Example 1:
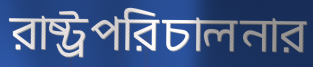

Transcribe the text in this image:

রাষ্ট্রপরিচালনার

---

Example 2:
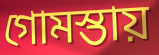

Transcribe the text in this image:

গোমস্তায়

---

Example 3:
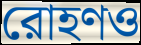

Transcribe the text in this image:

রোহণও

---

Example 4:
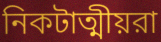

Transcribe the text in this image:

নিকটাত্মীয়রা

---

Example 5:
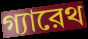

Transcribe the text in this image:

গ্যারেথ